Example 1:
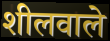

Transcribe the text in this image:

शीलवाले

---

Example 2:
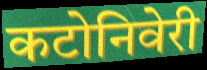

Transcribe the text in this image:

कटोनिवेरी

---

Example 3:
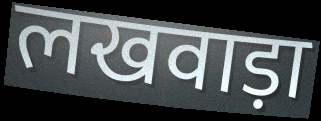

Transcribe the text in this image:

लखवाड़ा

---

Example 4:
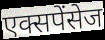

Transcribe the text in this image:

एक्सपेंसेज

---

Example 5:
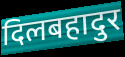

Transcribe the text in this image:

दिलबहादुर